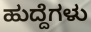
ಹುದ್ದೆಗಳು